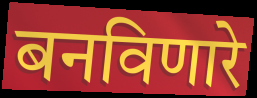
बनविणारे